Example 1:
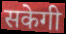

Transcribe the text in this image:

सकेगी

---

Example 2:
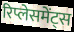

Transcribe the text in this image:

रिप्लेसमेंट्स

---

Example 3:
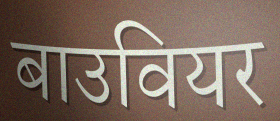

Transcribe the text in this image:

बाउवियर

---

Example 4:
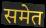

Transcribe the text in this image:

समेत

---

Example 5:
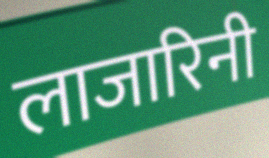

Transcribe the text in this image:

लाजारिनी